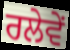
ਰਲੇਵੇਂ